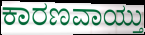
ಕಾರಣವಾಯ್ತು